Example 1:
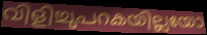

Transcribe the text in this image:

വിളിച്ചുപറകയില്ലയോ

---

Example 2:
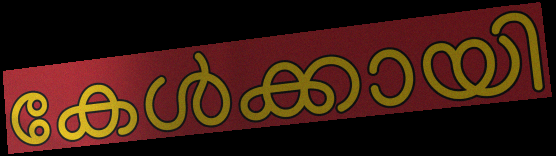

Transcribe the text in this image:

കേൾക്കായി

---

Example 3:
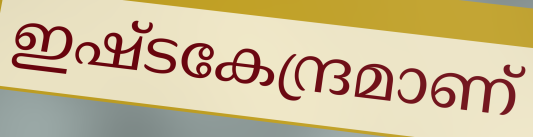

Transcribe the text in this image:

ഇഷ്ടകേന്ദ്രമാണ്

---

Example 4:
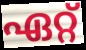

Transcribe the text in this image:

ഏറ്റ്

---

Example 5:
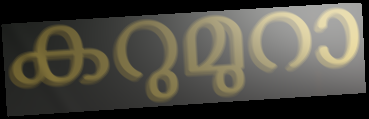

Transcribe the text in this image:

കറുമുറാ